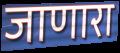
जाणारा